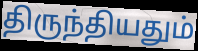
திருந்தியதும்